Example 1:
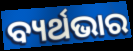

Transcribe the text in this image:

ବ୍ୟର୍ଥଭାର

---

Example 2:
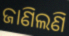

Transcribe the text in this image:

ଜାଣିଲଣି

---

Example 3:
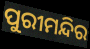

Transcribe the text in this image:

ପୁରୀମନ୍ଦିର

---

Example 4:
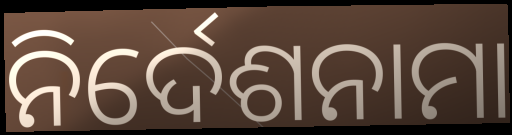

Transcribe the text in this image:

ନିର୍ଦେଶନାମା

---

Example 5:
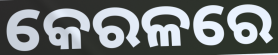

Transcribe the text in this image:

କେରଳରେ